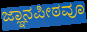
ಜ್ಞಾನಪೀಠವೂ